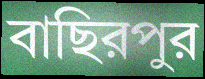
বাছিরপুর